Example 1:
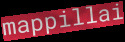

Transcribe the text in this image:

mappillai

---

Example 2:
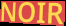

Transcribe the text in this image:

NOIR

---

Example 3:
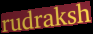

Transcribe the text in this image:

rudraksh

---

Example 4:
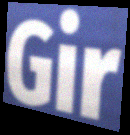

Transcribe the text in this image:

Gir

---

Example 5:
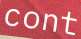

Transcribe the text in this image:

cont